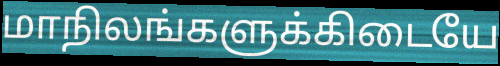
மாநிலங்களுக்கிடையே